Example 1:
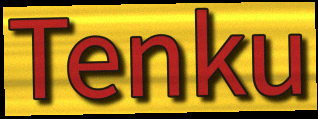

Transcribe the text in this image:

Tenku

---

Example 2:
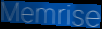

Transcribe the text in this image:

Memrise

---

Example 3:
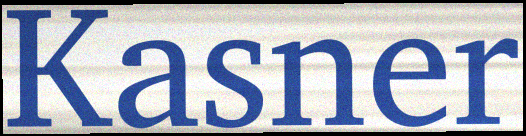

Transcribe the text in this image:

Kasner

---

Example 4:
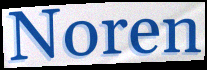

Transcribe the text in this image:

Noren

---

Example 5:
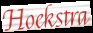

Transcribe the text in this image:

Hoekstra